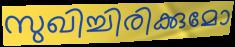
സുഖിച്ചിരിക്കുമോ